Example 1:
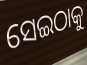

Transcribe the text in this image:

ସେଇଠାକୁ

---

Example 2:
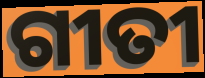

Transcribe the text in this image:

ଗୀତୀ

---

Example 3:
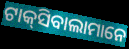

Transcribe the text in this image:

ଟାକ୍‌ସିବାଲାମାନେ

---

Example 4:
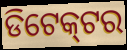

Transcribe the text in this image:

ଡିଟେକ୍‌ଟର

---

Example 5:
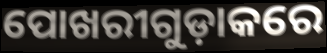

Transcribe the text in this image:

ପୋଖରୀଗୁଡ଼ାକରେ